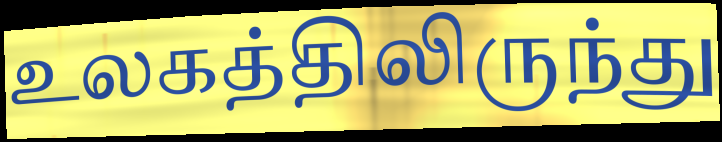
உலகத்திலிருந்து